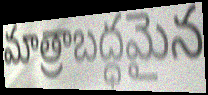
మాత్రాబద్ధమైన